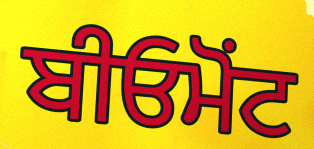
ਬੀਓਮੋਂਟ